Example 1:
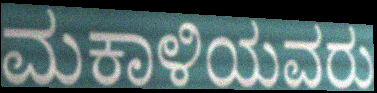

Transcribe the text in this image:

ಮಕಾಳಿಯವರು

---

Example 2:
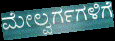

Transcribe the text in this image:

ಮೇಲ್ವರ್ಗಗಳಿಗೆ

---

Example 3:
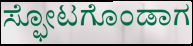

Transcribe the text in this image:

ಸ್ಫೋಟಗೊಂಡಾಗ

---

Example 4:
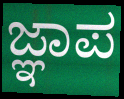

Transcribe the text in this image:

ಜ್ಞಾಪ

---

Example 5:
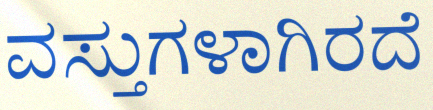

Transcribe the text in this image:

ವಸ್ತುಗಳಾಗಿರದೆ